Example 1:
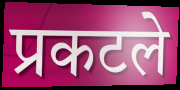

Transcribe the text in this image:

प्रकटले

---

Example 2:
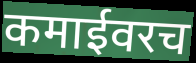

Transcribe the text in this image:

कमाईवरच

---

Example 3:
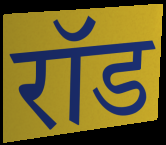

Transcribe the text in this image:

रॉड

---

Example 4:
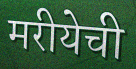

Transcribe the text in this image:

मरीयेची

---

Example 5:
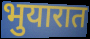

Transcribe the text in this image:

भुयारात